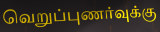
வெறுப்புணர்வுக்கு